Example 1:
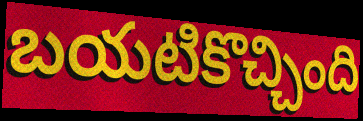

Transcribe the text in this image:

బయటికొచ్చింది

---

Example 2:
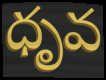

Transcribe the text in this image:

ధృవ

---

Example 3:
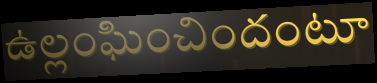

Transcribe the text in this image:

ఉల్లంఘించిందంటూ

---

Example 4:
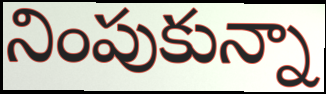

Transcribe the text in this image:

నింపుకున్నా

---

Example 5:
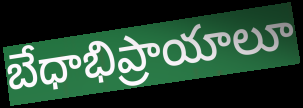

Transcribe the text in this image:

బేధాభిప్రాయాలూ